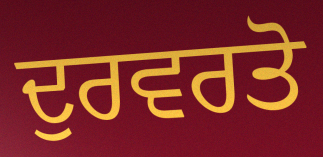
ਦੁਰਵਰਤੋ